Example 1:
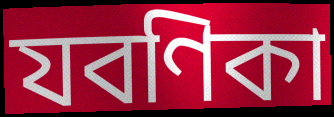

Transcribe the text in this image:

যবণিকা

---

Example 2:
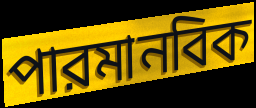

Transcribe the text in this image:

পারমানবিক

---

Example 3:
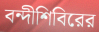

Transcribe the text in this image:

বন্দীশিবিরের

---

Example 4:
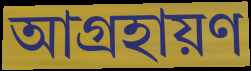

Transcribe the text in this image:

আগ্রহায়ণ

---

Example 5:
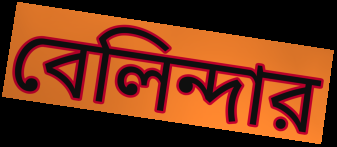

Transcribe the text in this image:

বেলিন্দার